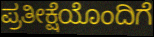
ಪ್ರತೀಕ್ಷೆಯೊಂದಿಗೆ